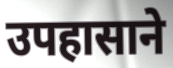
उपहासाने